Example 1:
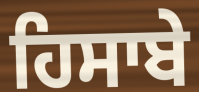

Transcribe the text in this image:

ਹਿਸਾਬੇ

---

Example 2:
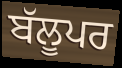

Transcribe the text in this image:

ਬੱਲੂਪਰ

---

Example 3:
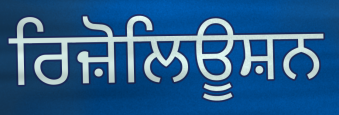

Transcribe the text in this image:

ਰਿਜ਼ੋਲਿਊਸ਼ਨ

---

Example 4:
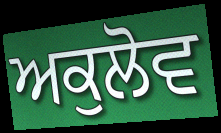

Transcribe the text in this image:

ਅਕੁਲੋਵ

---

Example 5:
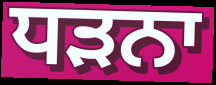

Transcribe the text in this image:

ਧੜਨਾ